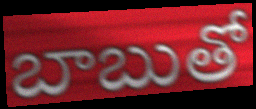
బాబుతో